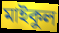
মাইকুল